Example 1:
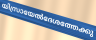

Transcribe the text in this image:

യിസ്രായേൽദേശത്തേക്കു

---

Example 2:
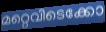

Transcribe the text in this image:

മറ്റെവിടെക്കോ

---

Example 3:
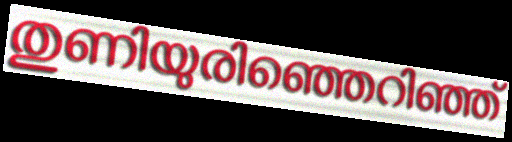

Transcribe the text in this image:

തുണിയുരിഞ്ഞെറിഞ്ഞ്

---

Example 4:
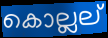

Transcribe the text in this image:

കൊല്ലല്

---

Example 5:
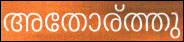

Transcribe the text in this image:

അതോര്ത്തു